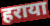
हराया